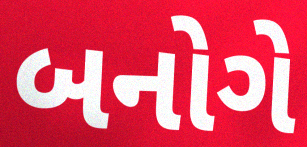
બનોગે